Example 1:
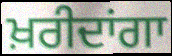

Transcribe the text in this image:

ਖ਼ਰੀਦਾਂਗਾ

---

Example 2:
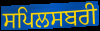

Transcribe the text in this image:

ਸਪਿਲਸਬਰੀ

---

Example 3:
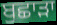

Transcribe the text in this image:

ਬੁਛਾੜਾ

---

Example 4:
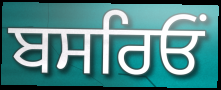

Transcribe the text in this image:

ਬਸਰਿਓਂ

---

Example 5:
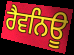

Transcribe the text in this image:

ਰੈਵਨਿਊ